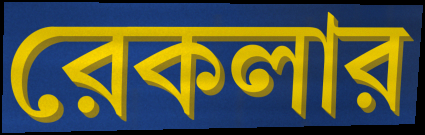
রেকলার